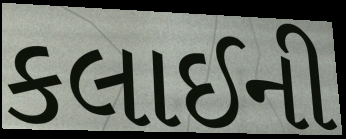
કલાઈની